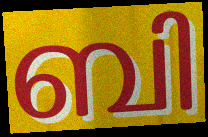
ബി